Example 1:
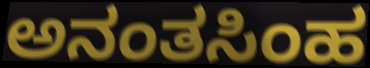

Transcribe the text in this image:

ಅನಂತಸಿಂಹ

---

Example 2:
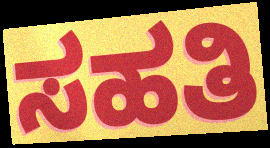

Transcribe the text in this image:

ಸಹತಿ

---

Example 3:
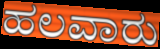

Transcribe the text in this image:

ಹಲವಾರು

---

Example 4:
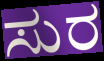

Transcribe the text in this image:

ಸುರ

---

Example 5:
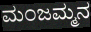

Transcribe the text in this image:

ಮಂಜಮ್ಮನ